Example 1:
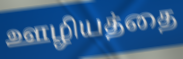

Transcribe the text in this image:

ஊழியத்தை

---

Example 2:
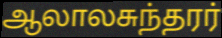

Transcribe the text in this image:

ஆலாலசுந்தரர்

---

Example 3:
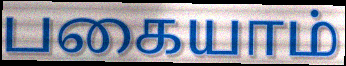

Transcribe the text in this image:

பகையாம்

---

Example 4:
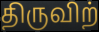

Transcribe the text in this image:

திருவிற்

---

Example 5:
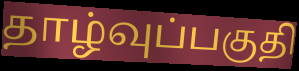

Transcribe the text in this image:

தாழ்வுப்பகுதி